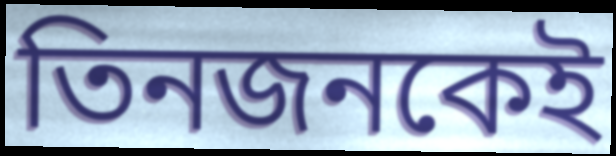
তিনজনকেই